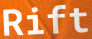
Rift